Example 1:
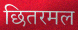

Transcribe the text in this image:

छितरमल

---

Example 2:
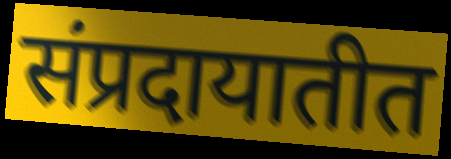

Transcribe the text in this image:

संप्रदायातीत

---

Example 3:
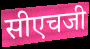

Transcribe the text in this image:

सीएचजी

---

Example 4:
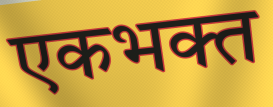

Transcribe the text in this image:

एकभक्त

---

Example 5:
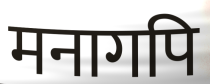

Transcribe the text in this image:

मनागपि